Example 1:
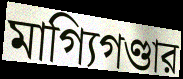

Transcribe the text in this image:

মাগ্যিগণ্ডার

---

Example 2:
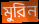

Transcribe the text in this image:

মুরিন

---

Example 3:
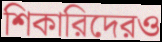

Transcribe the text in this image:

শিকারিদেরও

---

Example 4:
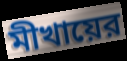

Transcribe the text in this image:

মীখায়ের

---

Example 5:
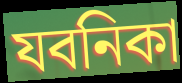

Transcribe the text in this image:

যবনিকা